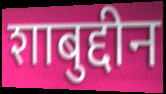
शाबुद्दीन